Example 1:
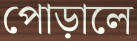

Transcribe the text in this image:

পোড়ালে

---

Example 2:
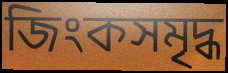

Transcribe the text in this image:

জিংকসমৃদ্ধ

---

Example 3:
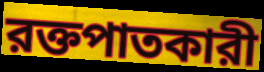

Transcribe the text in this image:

রক্তপাতকারী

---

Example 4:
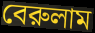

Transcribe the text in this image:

বেরুলাম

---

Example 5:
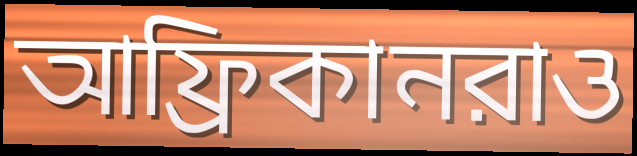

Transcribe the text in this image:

আফ্রিকানরাও